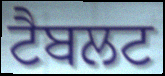
ਟੈਬਲਟ